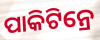
ପାକିଟିନ୍ରେ